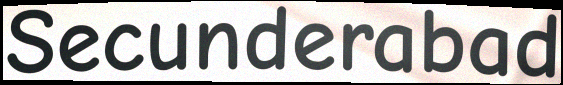
Secunderabad